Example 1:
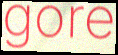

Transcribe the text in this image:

gore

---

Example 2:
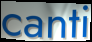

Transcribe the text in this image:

canti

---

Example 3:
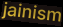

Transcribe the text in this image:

jainism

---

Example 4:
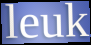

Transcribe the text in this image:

leuk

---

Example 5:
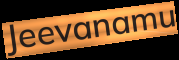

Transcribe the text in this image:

Jeevanamu